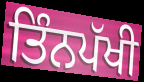
ਤਿੰਨਪੱਖੀ